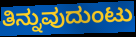
ತಿನ್ನುವುದುಂಟು